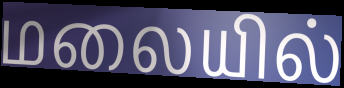
மலையில்